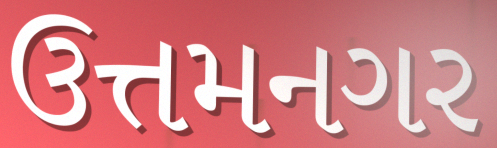
ઉત્તમનગર